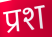
प्रश